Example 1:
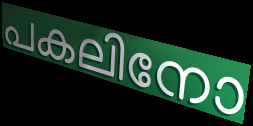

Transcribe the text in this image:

പകലിനോ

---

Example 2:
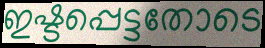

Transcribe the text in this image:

ഇഷ്ടപ്പെട്ടതോടെ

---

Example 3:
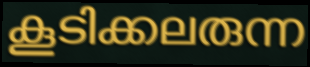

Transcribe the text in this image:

കൂടിക്കലരുന്ന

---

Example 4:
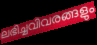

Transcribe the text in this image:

ലഭിച്ചവിവരങ്ങളും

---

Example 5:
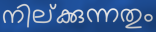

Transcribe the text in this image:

നില്ക്കുന്നതും